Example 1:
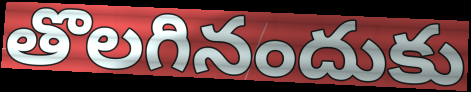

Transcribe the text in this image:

తొలగినందుకు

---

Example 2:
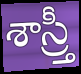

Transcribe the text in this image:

శాస్ర్తీ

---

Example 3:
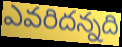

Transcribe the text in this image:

ఎవరిదన్నది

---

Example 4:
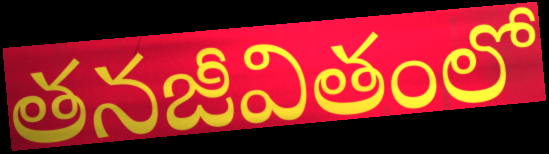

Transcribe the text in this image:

తనజీవితంలో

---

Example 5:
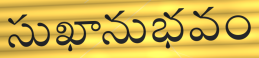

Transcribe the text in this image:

సుఖానుభవం